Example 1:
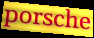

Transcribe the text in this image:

porsche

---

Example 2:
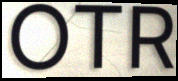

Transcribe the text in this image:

OTR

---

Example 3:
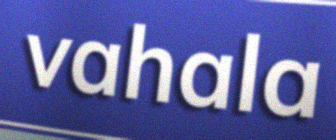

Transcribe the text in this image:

vahala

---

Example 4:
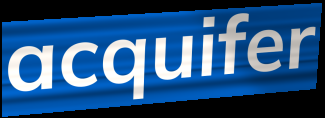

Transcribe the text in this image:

acquifer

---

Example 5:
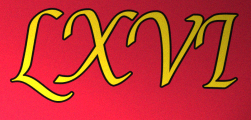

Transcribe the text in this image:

LXVI